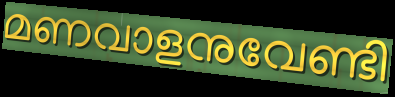
മണവാളനുവേണ്ടി